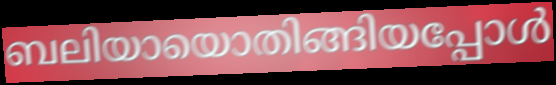
ബലിയായൊതിങ്ങിയപ്പോൾ